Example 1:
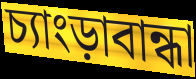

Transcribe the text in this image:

চ্যাংড়াবান্ধা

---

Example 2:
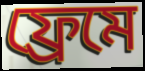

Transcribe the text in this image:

ফ্রেমে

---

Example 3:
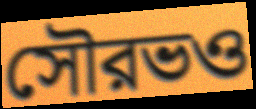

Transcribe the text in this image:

সৌরভও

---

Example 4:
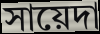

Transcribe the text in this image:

সায়েদা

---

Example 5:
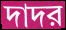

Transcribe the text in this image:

দাদর